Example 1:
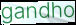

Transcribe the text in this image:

gandho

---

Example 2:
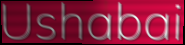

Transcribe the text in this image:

Ushabai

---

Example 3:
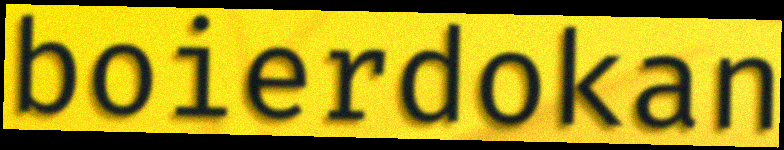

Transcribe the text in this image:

boierdokan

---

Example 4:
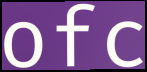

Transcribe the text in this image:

ofc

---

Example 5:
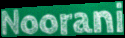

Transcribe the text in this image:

Noorani